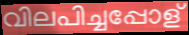
വിലപിച്ചപ്പോള്